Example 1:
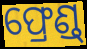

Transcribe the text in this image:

ଫ୍ରେଣ୍ଡ୍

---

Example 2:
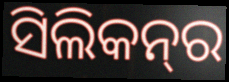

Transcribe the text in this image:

ସିଲିକନ୍‌ର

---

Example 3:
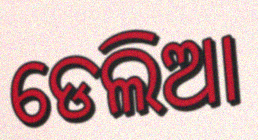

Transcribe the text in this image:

ଡେଲିଆ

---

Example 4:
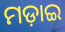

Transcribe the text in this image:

ମଡ଼ାଇ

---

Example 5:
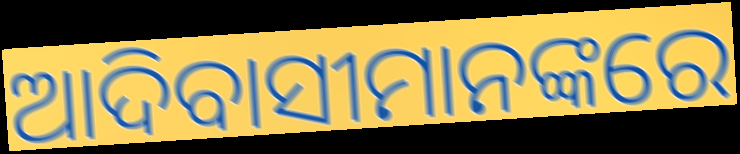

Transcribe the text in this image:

ଆଦିବାସୀମାନଙ୍କରେ